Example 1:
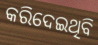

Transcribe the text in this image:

କରିଦେଇଥିବି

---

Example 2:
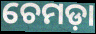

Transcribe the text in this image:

ଚେମଡ଼ା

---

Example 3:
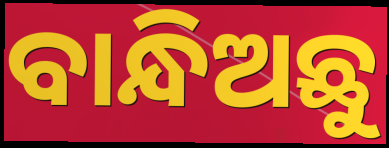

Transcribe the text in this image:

ବାନ୍ଧିଅଛୁ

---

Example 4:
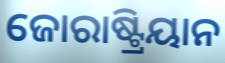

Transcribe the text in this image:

ଜୋରାଷ୍ଟ୍ରିୟାନ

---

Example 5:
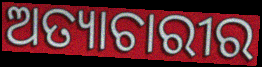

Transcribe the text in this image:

ଅତ୍ୟାଚାରୀର